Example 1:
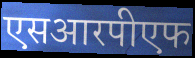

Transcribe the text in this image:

एसआरपीएफ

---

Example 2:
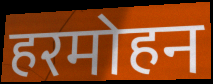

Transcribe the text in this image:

हरमोहन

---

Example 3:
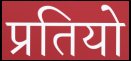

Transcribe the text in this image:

प्रतियो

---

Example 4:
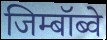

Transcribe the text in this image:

जिम्बॉब्वे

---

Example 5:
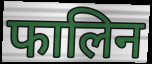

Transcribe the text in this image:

फालिन